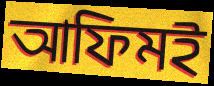
আফিমই